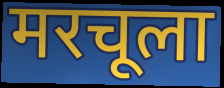
मरचूला